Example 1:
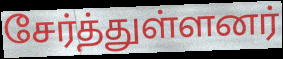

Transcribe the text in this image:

சேர்த்துள்ளனர்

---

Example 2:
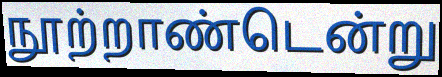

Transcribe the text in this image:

நூற்றாண்டென்று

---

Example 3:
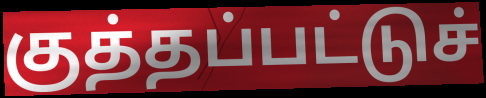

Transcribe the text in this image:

குத்தப்பட்டுச்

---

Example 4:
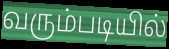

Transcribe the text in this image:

வரும்படியில்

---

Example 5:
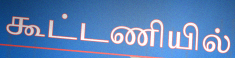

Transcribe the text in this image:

கூட்டணியில்